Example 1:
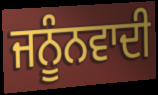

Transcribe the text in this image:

ਜਨੂੰਨਵਾਦੀ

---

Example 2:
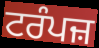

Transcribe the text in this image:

ਟਰੰਪਜ਼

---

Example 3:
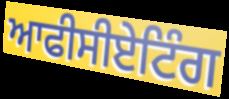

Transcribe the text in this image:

ਆਫੀਸੀਏਟਿੰਗ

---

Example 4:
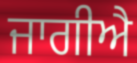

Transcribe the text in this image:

ਜਾਗੀਐ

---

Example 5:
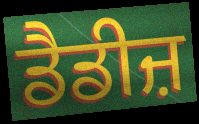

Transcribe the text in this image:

ਡੈਡੀਜ਼